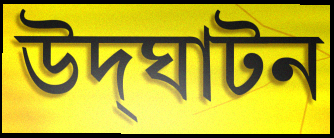
উদ্‌ঘাটন